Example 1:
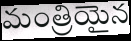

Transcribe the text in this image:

మంత్రియైన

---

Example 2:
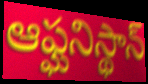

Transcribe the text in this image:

ఆఫ్ఘనిస్థాన్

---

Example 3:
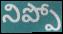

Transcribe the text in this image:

నిప్పో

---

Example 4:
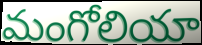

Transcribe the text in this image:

మంగోలియా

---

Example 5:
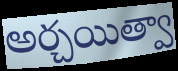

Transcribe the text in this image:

అర్చయిత్వా